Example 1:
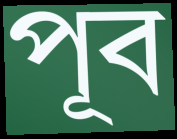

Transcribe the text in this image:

পূব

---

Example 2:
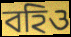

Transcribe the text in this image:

বহিও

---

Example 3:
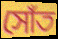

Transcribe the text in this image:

সোঁত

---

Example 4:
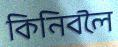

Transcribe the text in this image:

কিনিবলৈ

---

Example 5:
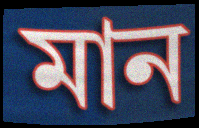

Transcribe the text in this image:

মান